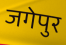
जगेपुर